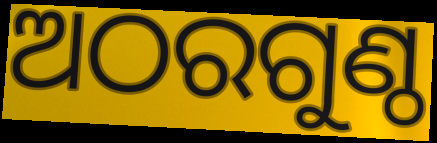
ଅଠରଗୁଣ୍ଠ